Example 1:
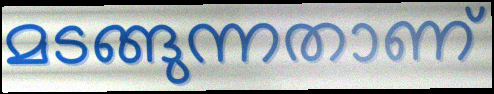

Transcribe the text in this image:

മടങ്ങുന്നതാണ്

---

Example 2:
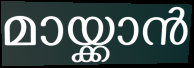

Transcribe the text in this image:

മായ്ക്കാൻ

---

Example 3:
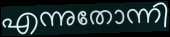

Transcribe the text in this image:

എന്നുതോന്നി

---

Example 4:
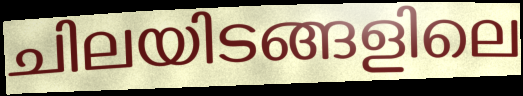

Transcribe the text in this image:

ചിലയിടങ്ങളിലെ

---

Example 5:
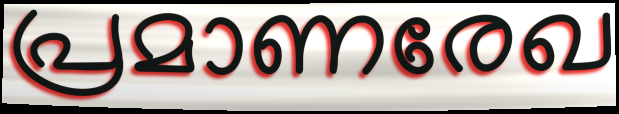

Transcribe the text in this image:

പ്രമാണരേഖ